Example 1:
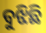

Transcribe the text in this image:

ବୁଝିଛି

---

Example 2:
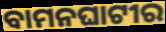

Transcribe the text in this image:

ବାମନଘାଟୀର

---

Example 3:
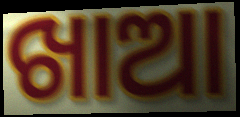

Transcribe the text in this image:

ଖାଆ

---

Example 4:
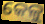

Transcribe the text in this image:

କେଳୁ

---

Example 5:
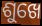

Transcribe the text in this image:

ଶୁଖେ